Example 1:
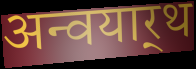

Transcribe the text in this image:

अन्वयार्थ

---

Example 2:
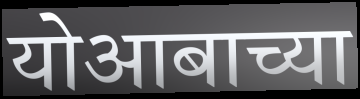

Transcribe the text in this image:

योआबाच्या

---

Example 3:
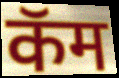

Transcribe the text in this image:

कॅम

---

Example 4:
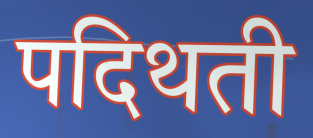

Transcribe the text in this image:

पदिथती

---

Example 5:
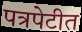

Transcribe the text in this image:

पत्रपेटीत